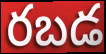
రబడ